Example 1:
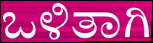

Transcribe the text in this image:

ಒಳಿತಾಗಿ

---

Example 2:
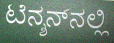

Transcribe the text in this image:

ಟೆನ್ಶನ್‌ನಲ್ಲಿ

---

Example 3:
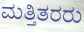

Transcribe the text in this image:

ಮತ್ತಿತರರು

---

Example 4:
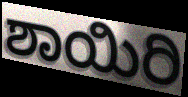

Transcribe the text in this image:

ಶಾಯಿರಿ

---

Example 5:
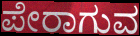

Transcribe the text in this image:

ಪೇರಾಗುವ